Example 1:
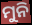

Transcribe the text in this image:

ମୁନି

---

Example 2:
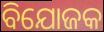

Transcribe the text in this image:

ବିଯୋଜକ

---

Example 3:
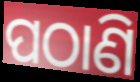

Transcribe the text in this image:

ପଠାଣି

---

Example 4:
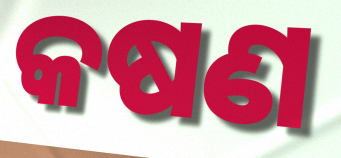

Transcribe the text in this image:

କଷଣ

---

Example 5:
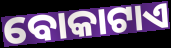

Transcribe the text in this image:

ବୋକାଟାଏ